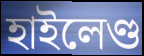
হাইলেণ্ড